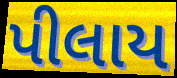
પીલાય